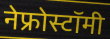
नेफ्रोस्टॉमी